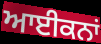
ਆਈਕਨਾਂ